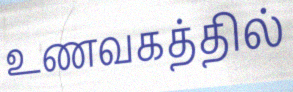
உணவகத்தில்